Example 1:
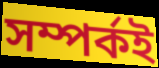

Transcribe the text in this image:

সম্পৰ্কই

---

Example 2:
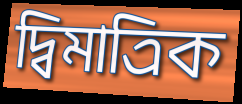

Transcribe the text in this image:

দ্বিমাত্ৰিক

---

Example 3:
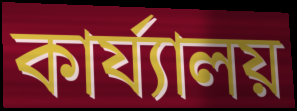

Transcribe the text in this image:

কাৰ্য্যালয়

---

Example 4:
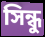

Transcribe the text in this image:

সিন্ধু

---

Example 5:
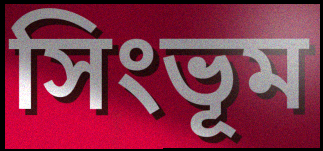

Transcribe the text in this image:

সিংভূম